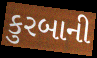
કુરબાની